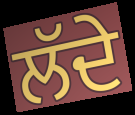
ਲੱਦੇ